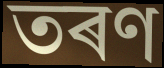
তৰণ